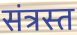
संत्रस्त